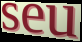
seu